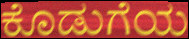
ಕೊಡುಗೆಯ